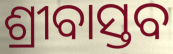
ଶ୍ରୀବାସ୍ତବ